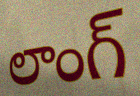
లాంగ్